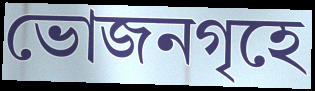
ভোজনগৃহে